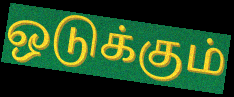
ஒடுக்கும்